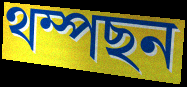
থম্পছন